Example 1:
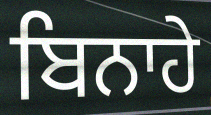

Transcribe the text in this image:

ਬਿਨਾਹੇ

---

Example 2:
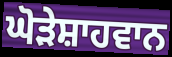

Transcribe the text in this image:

ਘੋੜੇਸ਼ਾਹਵਾਨ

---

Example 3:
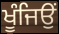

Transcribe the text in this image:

ਖੂੰਜਿਉਂ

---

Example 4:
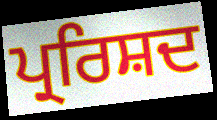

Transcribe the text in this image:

ਪ੍ਰਰਿਸ਼ਦ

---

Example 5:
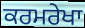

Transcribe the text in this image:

ਕਰਮਰੇਖਾ